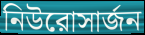
নিউরোসার্জন